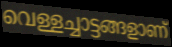
വെള്ളച്ചാട്ടങ്ങളാണ്